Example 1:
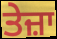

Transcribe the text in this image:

ਤੇਜ਼ਾ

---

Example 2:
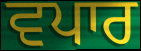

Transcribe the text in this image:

ਵਪਾਰ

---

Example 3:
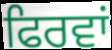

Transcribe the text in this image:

ਫਿਰਵਾਂ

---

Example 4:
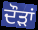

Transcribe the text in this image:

ਦੌੜਾਂ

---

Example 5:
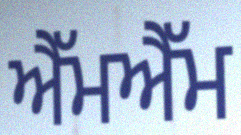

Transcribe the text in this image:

ਐੱਮਐੱਮ